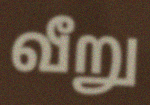
வீறு